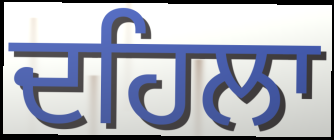
ਦਹਿਲਾ